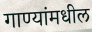
गाण्यांमधील